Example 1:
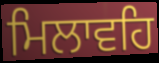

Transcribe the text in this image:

ਮਿਲਾਵਹਿ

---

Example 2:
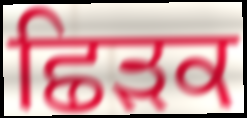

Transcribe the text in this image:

ਛਿੜਕ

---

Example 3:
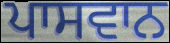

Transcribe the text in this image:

ਪਾਸਵਾਨ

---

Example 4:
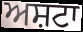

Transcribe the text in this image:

ਅਸ਼ਟਾ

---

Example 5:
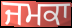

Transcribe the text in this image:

ਜਮਕਾ